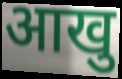
आखु